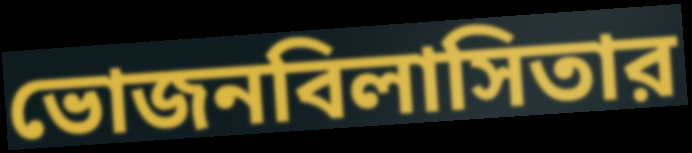
ভোজনবিলাসিতার